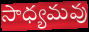
సాధ్యమవు